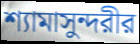
শ্যামাসুন্দরীর